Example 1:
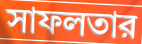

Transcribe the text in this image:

সাফলতার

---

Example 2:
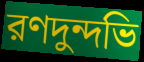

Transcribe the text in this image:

রণদুন্দভি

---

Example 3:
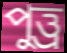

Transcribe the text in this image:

পুত্ত্র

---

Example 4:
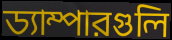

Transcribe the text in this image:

ড্যাম্পারগুলি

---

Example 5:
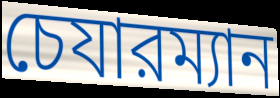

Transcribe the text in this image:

চেযারম্যান